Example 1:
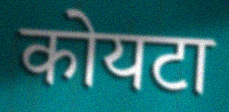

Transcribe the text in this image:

कोयटा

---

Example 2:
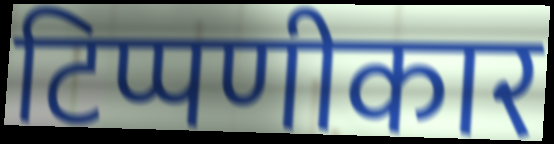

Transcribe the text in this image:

टिप्पणीकार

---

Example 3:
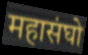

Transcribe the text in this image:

महासंघो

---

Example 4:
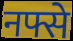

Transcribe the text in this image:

नफ्से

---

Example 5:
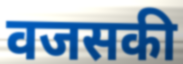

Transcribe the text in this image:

वजसकी